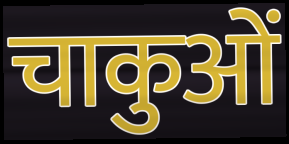
चाकुओं